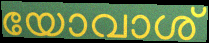
യോവാശ്